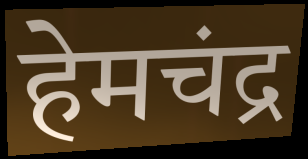
हेमचंद्र